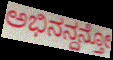
ಅಭಿನನ್ದನ್ತೋ